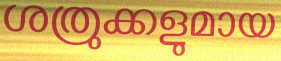
ശത്രുക്കളുമായ